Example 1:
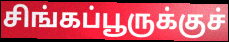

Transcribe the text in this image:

சிங்கப்பூருக்குச்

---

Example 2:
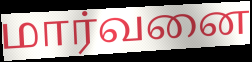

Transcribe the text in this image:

மார்வனை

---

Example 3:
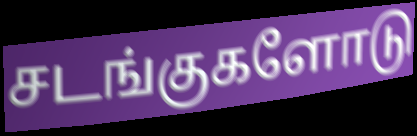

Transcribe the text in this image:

சடங்குகளோடு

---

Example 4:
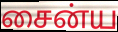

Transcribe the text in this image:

சைன்ய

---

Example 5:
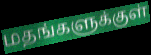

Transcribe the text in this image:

மதங்களுக்குள்